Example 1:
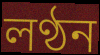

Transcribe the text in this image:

লণ্ঠন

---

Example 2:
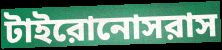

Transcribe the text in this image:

টাইরোনোসরাস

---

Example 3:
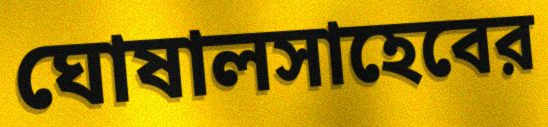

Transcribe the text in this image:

ঘোষালসাহেবের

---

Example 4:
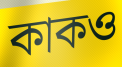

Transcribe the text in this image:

কাকও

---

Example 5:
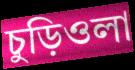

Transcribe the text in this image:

চুড়িওলা